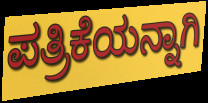
ಪತ್ರಿಕೆಯನ್ನಾಗಿ